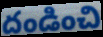
దండించి